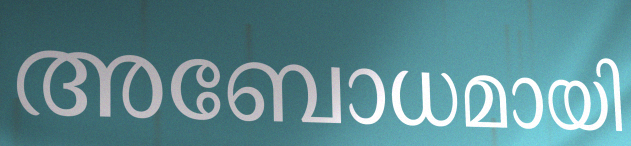
അബോധമായി